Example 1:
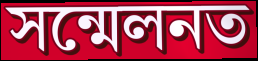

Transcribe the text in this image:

সন্মেলনত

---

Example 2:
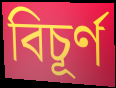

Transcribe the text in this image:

বিচূৰ্ণ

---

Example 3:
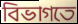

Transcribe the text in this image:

বিভাগতে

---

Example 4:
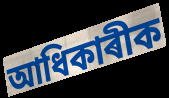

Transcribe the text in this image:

আধিকাৰীক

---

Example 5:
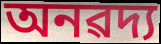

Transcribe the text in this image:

অনৱদ্য